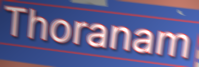
Thoranam